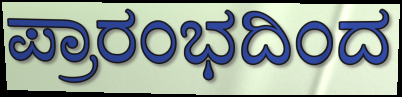
ಪ್ರಾರಂಭದಿಂದ